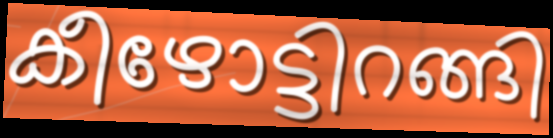
കീഴോട്ടിറങ്ങി